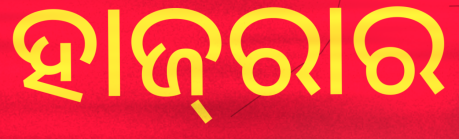
ହାଜ୍‌ରାର